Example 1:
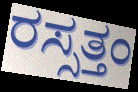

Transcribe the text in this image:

ರಸ್ಸತ್ತಂ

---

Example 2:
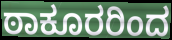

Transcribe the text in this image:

ಠಾಕೂರರಿಂದ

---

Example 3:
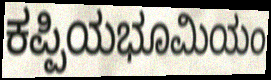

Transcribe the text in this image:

ಕಪ್ಪಿಯಭೂಮಿಯಂ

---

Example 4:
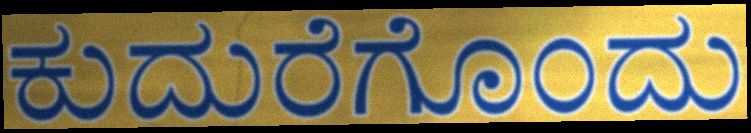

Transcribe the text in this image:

ಕುದುರೆಗೊಂದು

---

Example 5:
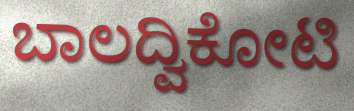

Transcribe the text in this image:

ಬಾಲದ್ವಿಕೋಟಿ